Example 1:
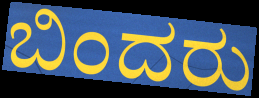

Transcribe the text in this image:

ಬಿಂದರು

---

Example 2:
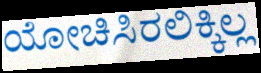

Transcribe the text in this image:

ಯೋಚಿಸಿರಲಿಕ್ಕಿಲ್ಲ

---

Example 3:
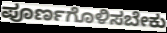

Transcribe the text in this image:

ಪೂರ್ಣಗೊಳಿಸಬೇಕು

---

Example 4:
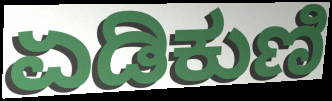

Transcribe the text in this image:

ಏಡಿಕುಣಿ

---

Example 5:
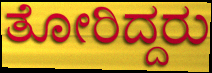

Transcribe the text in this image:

ತೋರಿದ್ದರು